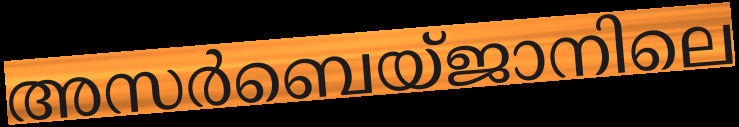
അസർബെയ്ജാനിലെ